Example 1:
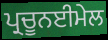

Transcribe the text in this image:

ਪ੍ਰਚੂਨਈਮੇਲ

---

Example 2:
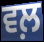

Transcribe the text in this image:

ਵਲ਼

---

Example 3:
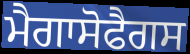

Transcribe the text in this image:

ਮੈਗਾਸੋਫੈਗਸ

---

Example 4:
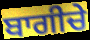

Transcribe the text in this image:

ਬਾਗੀਚੇ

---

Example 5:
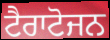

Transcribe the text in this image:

ਟੈਰਾਟੋਜਨ